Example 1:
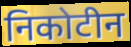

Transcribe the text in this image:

निकोटीन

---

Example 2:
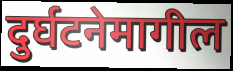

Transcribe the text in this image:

दुर्घटनेमागील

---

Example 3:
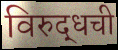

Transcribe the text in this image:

विरुद्धची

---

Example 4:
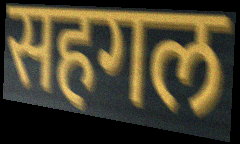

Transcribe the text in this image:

सहगल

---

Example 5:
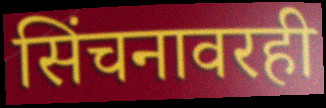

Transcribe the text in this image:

सिंचनावरही